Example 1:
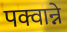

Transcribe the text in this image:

पक्वान्ने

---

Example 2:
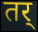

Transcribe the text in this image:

तर्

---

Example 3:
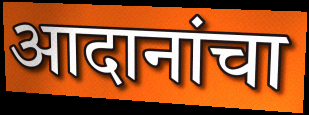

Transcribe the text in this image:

आदानांचा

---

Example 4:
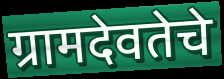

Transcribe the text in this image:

ग्रामदेवतेचे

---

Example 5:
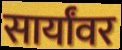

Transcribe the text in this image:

सार्यांवर